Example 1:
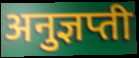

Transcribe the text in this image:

अनुज्ञप्ती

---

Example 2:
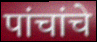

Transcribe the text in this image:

पांचांचे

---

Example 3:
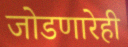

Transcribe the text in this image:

जोडणारेही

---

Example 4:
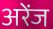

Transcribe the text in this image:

अरेंज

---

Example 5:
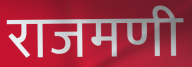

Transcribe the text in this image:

राजमणी